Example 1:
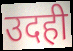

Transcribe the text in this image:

उदही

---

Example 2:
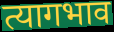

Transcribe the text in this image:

त्यागभाव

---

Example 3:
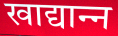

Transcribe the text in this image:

खाद्यान्‍न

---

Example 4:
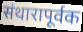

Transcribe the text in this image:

संथारापूर्वक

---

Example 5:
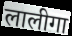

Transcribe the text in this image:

लालीगा